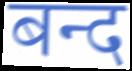
बन्द